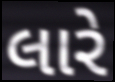
લારે